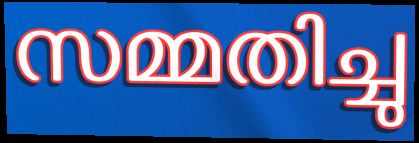
സമ്മതിച്ചു